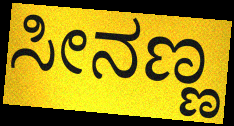
ಸೀನಣ್ಣ